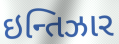
ઇન્તિઝાર